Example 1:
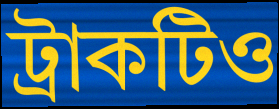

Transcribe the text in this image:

ট্রাকটিও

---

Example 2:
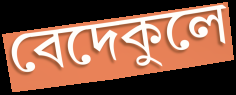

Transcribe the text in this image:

বেদেকুলে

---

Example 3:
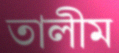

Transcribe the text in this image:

তালীম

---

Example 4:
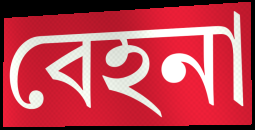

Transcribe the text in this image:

বেহনা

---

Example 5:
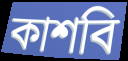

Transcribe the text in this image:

কাশবি